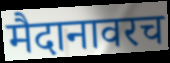
मैदानावरच